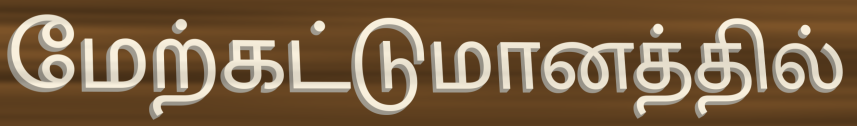
மேற்கட்டுமானத்தில்